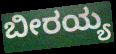
ಬೀರಯ್ಯ